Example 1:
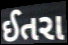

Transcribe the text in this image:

ઈતરા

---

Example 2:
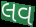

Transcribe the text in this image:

લવ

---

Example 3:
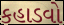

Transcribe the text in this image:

કહાડવો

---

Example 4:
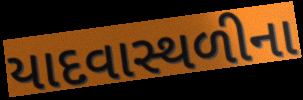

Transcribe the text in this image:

યાદવાસ્થળીના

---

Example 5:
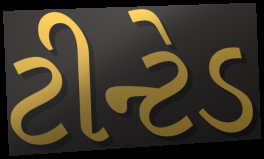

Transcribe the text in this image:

ટીન્ટેડ